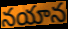
నయాన